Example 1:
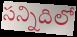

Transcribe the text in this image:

సన్నిదిలో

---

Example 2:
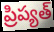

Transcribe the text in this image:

ప్రిప్యత్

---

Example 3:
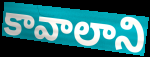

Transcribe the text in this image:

కావాలాని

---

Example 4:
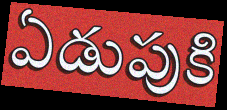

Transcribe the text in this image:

ఏడుపుకి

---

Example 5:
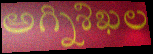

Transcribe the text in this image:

అగ్నిశిఖల